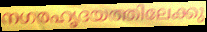
നഗരഹൃദയത്തിലേക്കു